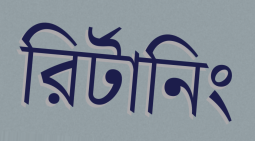
রির্টানিং